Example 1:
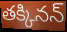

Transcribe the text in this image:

తక్కినన్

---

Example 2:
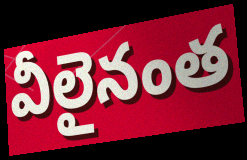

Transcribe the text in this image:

వీలైనంత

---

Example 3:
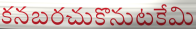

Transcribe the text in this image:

కనబరచుకొనుటకేమి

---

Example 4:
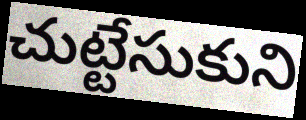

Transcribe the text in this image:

చుట్టేసుకుని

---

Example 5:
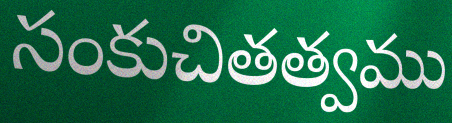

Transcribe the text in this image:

సంకుచితత్వము